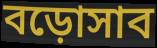
বড়োসাব